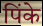
पिंके